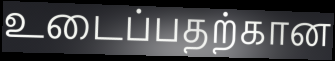
உடைப்பதற்கான